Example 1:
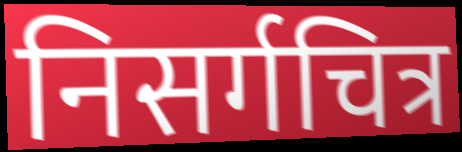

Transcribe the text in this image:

निसर्गचित्र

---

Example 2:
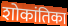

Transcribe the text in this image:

शोकांतिका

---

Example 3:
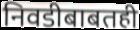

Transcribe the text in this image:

निवडीबाबतही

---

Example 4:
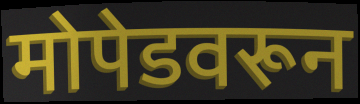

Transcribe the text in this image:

मोपेडवरून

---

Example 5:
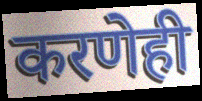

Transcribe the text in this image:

करणेही